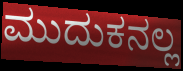
ಮುದುಕನಲ್ಲ